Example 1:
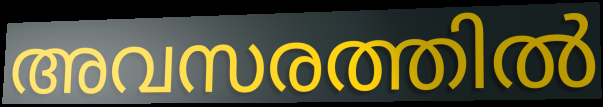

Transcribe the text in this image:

അവസരത്തിൽ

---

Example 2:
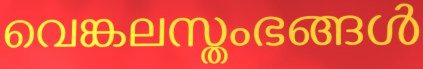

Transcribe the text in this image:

വെങ്കലസ്തംഭങ്ങൾ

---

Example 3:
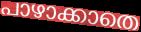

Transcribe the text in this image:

പാഴാക്കാതെ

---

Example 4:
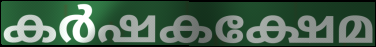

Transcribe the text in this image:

കർഷകക്ഷേമ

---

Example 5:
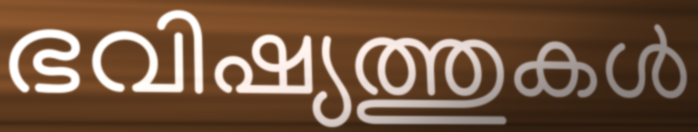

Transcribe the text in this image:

ഭവിഷ്യത്തുകൾ